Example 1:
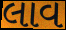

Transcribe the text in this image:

લાવ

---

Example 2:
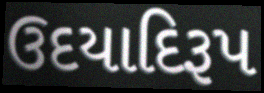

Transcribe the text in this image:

ઉદયાદિરૂપ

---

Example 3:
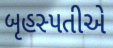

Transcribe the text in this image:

બૃહસ્પતીએ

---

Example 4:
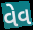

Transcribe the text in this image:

વેવ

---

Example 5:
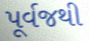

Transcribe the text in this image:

પૂર્વજથી